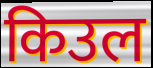
किउल